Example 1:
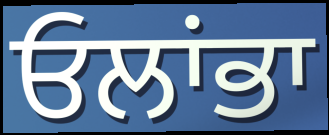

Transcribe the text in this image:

ਓਲਾਂਭਾ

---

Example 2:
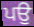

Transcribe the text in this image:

ਪਉ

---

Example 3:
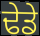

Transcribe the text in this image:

ਢੇਡੇ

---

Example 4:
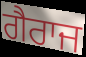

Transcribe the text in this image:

ਗੈਰਾਜ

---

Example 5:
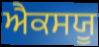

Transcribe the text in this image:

ਐਕਸਯੂ